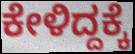
ಕೇಳಿದ್ದಕ್ಕೆ